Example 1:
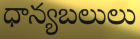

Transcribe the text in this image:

ధాన్యబలులు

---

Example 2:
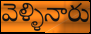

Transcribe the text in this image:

వెళ్ళినారు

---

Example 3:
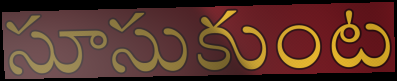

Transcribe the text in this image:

సూసుకుంట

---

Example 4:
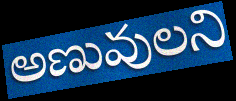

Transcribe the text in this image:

అణువులని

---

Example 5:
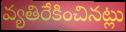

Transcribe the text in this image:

వ్యతిరేకించినట్లు